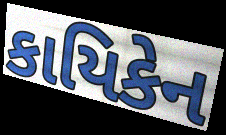
કાયિકેન